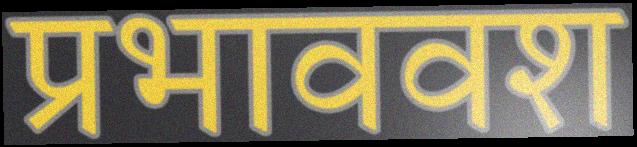
प्रभाववश